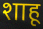
शाहू